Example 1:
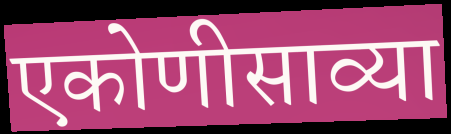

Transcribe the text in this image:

एकोणीसाव्या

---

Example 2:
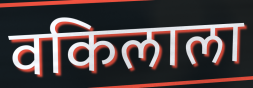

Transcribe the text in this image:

वकिलाला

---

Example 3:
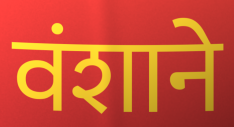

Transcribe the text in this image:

वंशाने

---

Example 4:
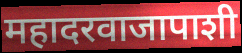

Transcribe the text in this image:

महादरवाजापाशी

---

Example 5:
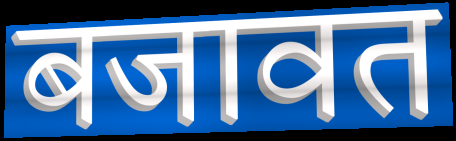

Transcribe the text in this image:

बजावत